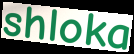
shloka